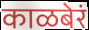
काळबेरं